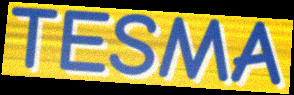
TESMA